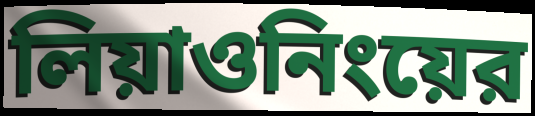
লিয়াওনিংয়ের